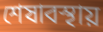
শেষাবস্থায়